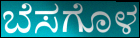
ಬೆಸಗೊಳ